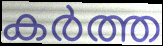
കർത്ത